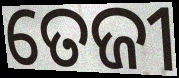
ତେଜୀ